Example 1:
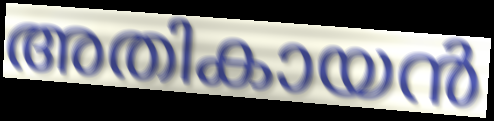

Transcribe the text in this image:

അതികായൻ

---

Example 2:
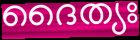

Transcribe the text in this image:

ദൈത്യഃ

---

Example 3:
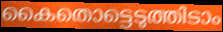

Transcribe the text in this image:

കൈതൊട്ടെടുത്തിടാം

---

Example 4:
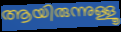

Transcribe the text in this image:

ആയിരുന്നുള്ളൂ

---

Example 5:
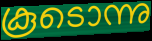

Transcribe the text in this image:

കൂടൊന്നു